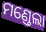
ମଣ୍ଡେଲା